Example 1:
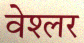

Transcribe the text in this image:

वेश्लर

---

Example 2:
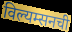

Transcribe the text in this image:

विल्यम्सनची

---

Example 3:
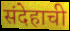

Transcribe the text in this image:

संदेहाची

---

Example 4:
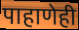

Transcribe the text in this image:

पाहाणेही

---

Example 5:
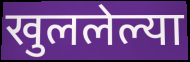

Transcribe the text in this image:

खुललेल्या